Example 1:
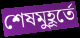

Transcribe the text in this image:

শেষমুহূর্তে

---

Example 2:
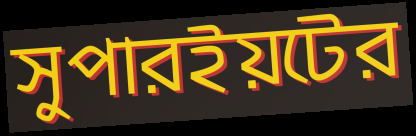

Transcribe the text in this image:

সুপারইয়টের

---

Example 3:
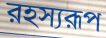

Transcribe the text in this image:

রহস্যরূপ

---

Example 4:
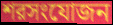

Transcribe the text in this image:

শরসংযোজন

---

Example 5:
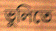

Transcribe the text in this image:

ভুলিতে